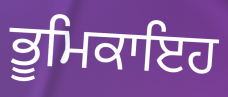
ਭੂਮਿਕਾਇਹ